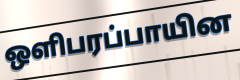
ஒளிபரப்பாயின